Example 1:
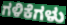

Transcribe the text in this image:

ಗಳಿಕೆಗಳು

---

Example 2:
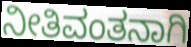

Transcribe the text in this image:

ನೀತಿವಂತನಾಗಿ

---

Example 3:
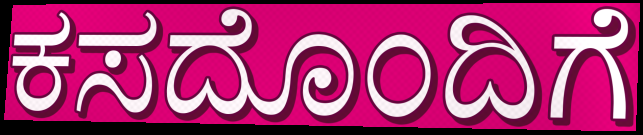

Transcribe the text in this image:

ಕಸದೊಂದಿಗೆ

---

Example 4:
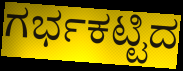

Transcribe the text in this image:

ಗರ್ಭಕಟ್ಟಿದ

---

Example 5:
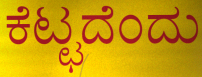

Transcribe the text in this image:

ಕೆಟ್ಟದೆಂದು